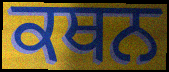
ਕਥਨ